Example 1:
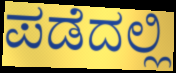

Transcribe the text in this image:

ಪಡೆದಲ್ಲಿ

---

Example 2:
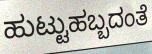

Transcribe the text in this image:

ಹುಟ್ಟುಹಬ್ಬದಂತೆ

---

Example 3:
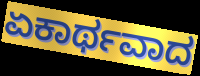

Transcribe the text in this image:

ಏಕಾರ್ಥವಾದ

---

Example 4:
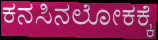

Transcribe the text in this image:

ಕನಸಿನಲೋಕಕ್ಕೆ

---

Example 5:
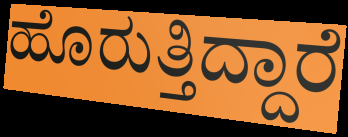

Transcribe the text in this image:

ಹೊರುತ್ತಿದ್ದಾರೆ